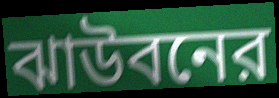
ঝাউবনের